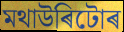
মথাউৰিটোৰ